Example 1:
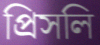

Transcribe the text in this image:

প্রিসলি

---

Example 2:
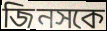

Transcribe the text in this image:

জিনসকে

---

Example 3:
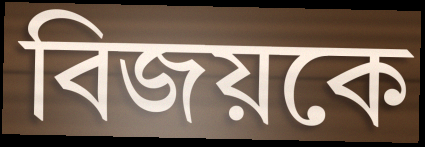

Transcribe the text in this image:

বিজয়কে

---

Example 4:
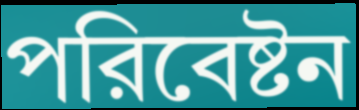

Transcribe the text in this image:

পরিবেষ্টন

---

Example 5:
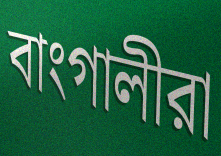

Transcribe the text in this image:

বাংগালীরা